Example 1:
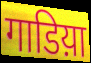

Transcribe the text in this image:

गाडिय़ा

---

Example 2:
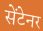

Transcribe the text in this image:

सेंटेनर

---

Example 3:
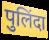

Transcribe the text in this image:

पुलिंदा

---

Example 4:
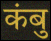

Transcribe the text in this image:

कंबु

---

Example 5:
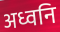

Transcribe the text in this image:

अध्वनि